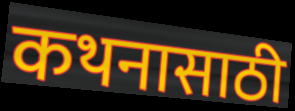
कथनासाठी